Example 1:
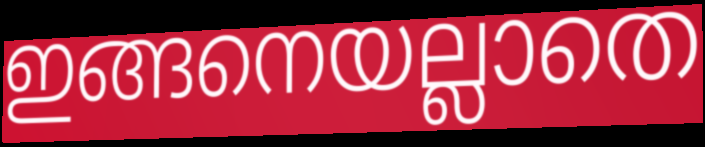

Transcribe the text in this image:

ഇങ്ങനെയല്ലാതെ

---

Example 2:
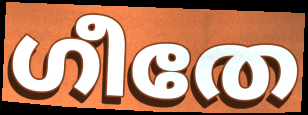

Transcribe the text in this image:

ഗീതേ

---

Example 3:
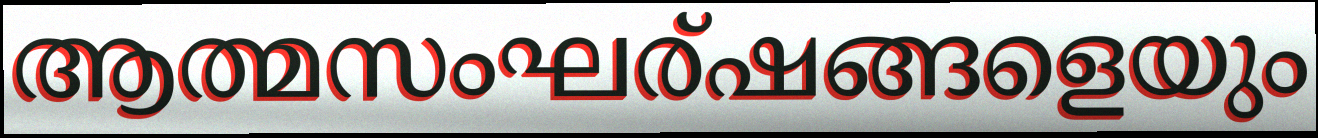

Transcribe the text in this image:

ആത്മസംഘര്ഷങ്ങളെയും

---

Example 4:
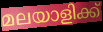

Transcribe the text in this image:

മലയാളിക്ക്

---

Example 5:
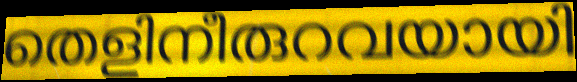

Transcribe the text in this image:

തെളിനീരുറവയായി